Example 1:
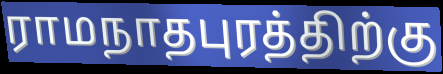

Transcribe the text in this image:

ராமநாதபுரத்திற்கு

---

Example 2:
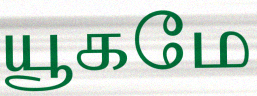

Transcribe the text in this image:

யூகமே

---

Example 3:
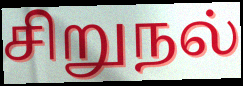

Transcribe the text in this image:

சிறுநல்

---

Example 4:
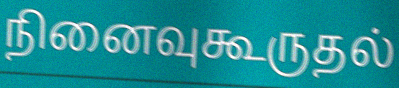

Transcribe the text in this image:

நினைவுகூருதல்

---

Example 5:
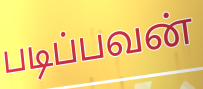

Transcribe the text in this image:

படிப்பவன்